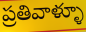
ప్రతివాళ్ళూ